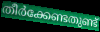
തീർക്കേണ്ടതുണ്ട്